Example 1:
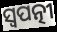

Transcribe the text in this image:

ସ୍ୱପତ୍ନୀ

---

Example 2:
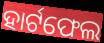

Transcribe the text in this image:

ହାର୍ଟଫେଲ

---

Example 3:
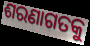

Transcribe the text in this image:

ଶରଣାଗତକୁ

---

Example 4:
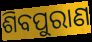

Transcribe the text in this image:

ଶିବପୁରାଣ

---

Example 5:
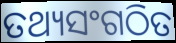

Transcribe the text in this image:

ତଥ୍ୟସଂଗଠିତ